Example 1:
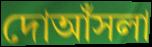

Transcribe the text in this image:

দোআঁসলা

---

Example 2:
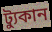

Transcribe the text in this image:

ট্যুকান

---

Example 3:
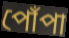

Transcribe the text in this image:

পোঁপা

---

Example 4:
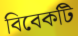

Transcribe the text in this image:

বিবেকটি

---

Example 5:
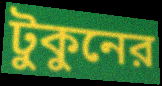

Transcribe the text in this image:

টুকুনের